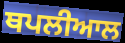
ਥਪਲੀਆਲ